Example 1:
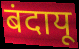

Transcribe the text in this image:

बंदायू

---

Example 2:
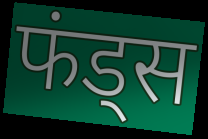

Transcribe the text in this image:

फंड्स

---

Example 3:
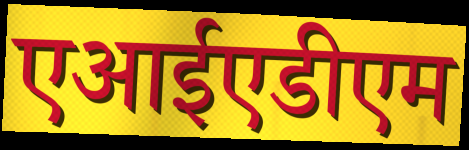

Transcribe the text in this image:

एआईएडीएम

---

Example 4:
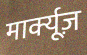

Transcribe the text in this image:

मार्क्यूज़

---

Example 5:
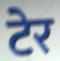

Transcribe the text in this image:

टेर